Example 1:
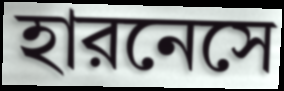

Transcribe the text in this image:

হারনেসে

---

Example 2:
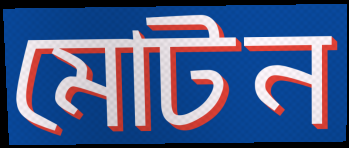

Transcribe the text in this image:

মোটন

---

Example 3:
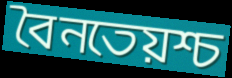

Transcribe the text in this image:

বৈনতেয়শ্চ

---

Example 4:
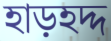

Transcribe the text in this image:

হাড়হদ্দ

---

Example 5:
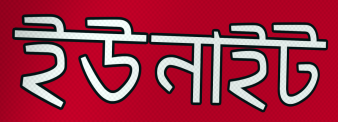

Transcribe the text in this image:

ইউনাইট